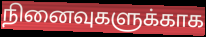
நினைவுகளுக்காக